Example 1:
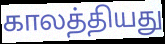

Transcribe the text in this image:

காலத்தியது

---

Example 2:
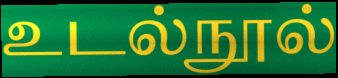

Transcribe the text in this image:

உடல்நூல்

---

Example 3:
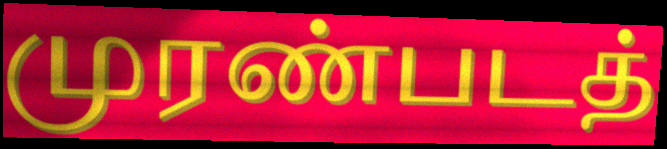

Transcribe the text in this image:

முரண்படத்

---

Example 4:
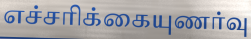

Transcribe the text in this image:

எச்சரிக்கையுணர்வு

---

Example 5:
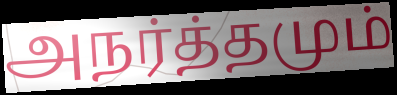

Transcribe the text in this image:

அநர்த்தமும்